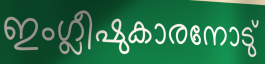
ഇംഗ്ലീഷുകാരനോടു്